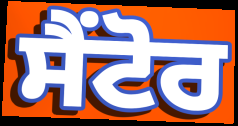
ਸੈਂਟੋਰ